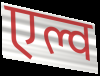
एल्व